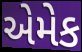
એમેક